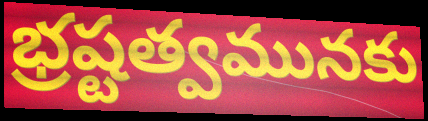
భ్రష్టత్వమునకు